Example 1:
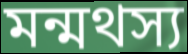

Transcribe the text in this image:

মন্মথস্য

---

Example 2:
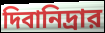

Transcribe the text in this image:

দিবানিদ্রার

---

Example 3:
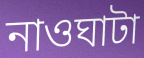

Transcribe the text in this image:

নাওঘাটা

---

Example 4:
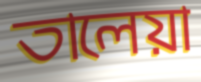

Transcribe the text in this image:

তালেয়া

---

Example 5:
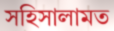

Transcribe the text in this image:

সহিসালামত